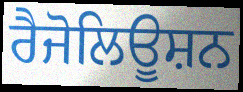
ਰੈਜੋਲਿਊਸ਼ਨ